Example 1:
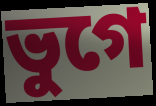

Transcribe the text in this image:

ভুগে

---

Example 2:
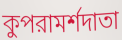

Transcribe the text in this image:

কুপরামর্শদাতা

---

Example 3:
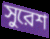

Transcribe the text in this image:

সুরেশ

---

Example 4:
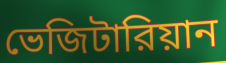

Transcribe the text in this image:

ভেজিটারিয়ান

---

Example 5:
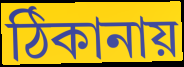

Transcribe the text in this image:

ঠিকানায়